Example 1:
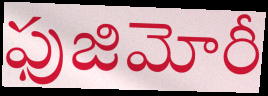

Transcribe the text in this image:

ఫుజిమోరీ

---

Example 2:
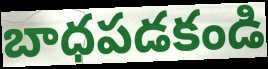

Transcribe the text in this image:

బాధపడకండి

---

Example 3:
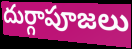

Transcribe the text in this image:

దుర్గాపూజలు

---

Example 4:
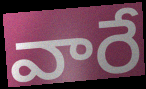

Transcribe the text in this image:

వారే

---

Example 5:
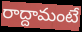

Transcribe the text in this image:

రాద్దామంటే